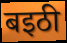
बइठी